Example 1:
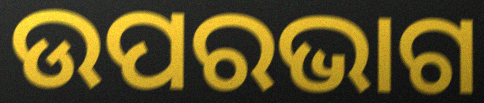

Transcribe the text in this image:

ଉପରଭାଗ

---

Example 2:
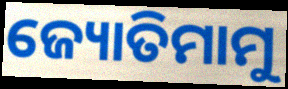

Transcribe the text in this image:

ଜ୍ୟୋତିମାମୁ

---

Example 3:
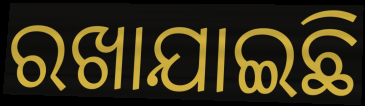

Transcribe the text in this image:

ରଖାଯାଇଛି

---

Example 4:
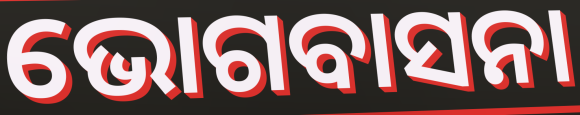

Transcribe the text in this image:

ଭୋଗବାସନା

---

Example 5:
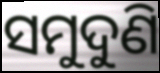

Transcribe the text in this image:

ସମୁଦୁଣି